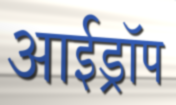
आईड्रॉप